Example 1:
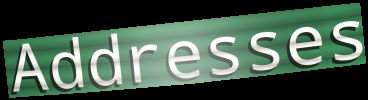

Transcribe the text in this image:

Addresses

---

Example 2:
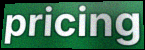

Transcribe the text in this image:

pricing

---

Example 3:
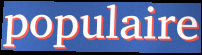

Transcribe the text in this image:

populaire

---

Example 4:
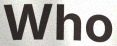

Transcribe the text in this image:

Who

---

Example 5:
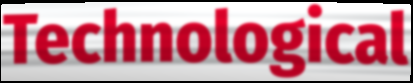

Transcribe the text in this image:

Technological